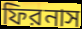
ফিরনাস